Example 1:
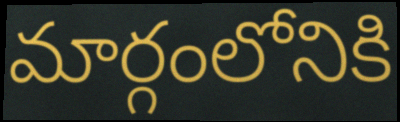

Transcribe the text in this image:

మార్గంలోనికి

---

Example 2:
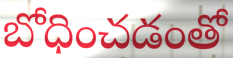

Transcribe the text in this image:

బోధించడంతో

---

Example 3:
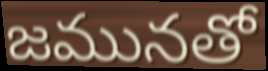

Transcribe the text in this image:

జమునతో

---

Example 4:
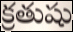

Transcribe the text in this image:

క్రతుషు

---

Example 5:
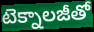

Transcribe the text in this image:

టెక్నాలజీతో